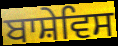
ਬਾਸ਼ੇਵਿਸ